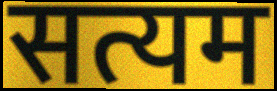
सत्यम